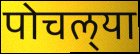
पोचल्या